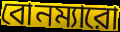
বোনম্যারো